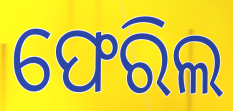
ଫେରିଲ